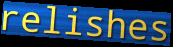
relishes